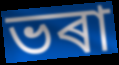
ভৰা